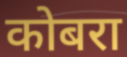
कोबरा